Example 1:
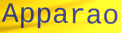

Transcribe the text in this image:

Apparao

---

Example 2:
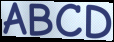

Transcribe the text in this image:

ABCD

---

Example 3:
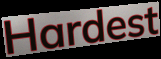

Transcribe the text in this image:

Hardest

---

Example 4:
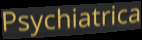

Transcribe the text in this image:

Psychiatrica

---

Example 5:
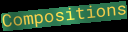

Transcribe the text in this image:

Compositions